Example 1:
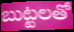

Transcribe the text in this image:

బుట్టలతో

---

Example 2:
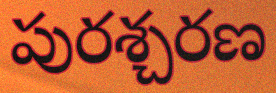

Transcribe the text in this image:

పురశ్చరణ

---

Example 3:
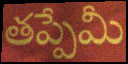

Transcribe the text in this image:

తప్పేమీ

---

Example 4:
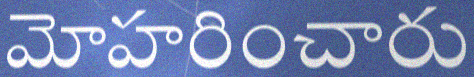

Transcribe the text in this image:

మోహరించారు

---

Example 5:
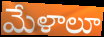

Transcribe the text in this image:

మేళాలూ